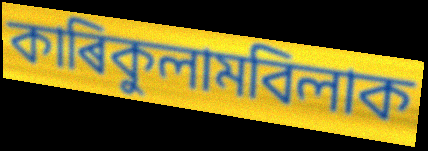
কাৰিকুলামবিলাক